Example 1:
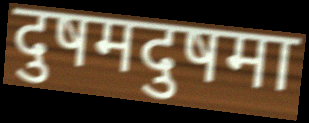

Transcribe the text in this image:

दुषमदुषमा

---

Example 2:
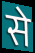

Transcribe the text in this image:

से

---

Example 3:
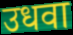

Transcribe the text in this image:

उधवा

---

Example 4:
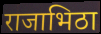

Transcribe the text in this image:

राजाभिठा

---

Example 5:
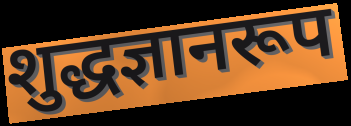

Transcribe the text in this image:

शुद्धज्ञानरूप